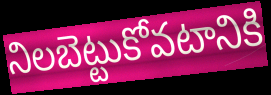
నిలబెట్టుకోవటానికి